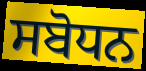
ਸਬੋਧਨ